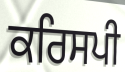
ਕਰਿਸਪੀ